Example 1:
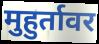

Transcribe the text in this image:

मुहुर्तावर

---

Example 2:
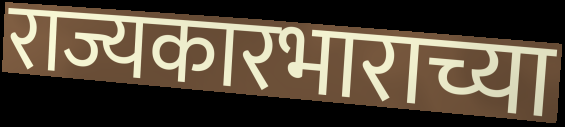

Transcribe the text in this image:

राज्यकारभाराच्या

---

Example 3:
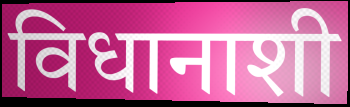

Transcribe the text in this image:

विधानाशी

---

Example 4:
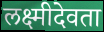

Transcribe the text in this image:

लक्ष्मीदेवता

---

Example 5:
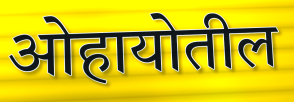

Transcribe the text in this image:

ओहायोतील